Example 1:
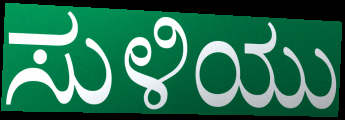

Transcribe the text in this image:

ಸುಳಿಯು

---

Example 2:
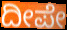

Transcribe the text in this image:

ದೀಪೇ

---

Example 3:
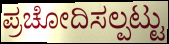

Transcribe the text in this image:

ಪ್ರಚೋದಿಸಲ್ಪಟ್ಟು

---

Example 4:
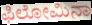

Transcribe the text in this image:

ಫಿಲೋಮಿನಾ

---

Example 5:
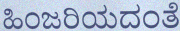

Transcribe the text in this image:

ಹಿಂಜರಿಯದಂತೆ